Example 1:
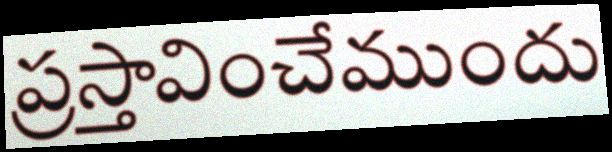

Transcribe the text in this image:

ప్రస్తావించేముందు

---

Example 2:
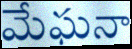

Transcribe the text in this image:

మేఘనా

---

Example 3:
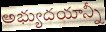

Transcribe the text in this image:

అభ్యుదయాన్నీ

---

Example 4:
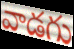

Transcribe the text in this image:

వాడగు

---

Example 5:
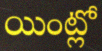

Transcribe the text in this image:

యింట్లో